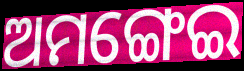
ଅମଙ୍ଗେଇ